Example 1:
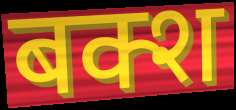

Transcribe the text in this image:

बक्श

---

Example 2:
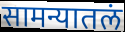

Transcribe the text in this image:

सामन्यातलं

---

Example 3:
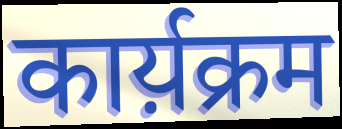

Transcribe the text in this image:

कार्य़क्रम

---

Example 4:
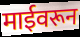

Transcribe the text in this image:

माईवरून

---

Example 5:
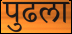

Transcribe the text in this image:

पुढला